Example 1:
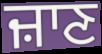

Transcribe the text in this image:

ਜ਼ਾਣ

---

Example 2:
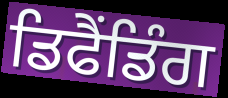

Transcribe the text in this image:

ਡਿਫੈਂਡਿੰਗ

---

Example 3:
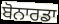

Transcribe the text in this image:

ਬੋਨਾਰਡਾ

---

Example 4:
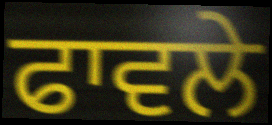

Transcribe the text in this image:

ਫਾਵਲੇ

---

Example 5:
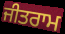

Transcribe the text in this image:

ਜੀਤਰਾਮ